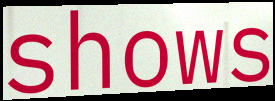
shows